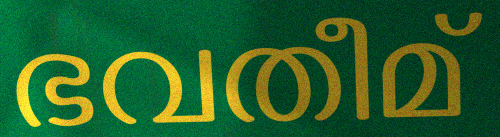
ഭവതീമ്